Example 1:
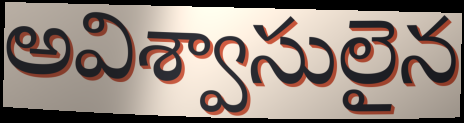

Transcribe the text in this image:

అవిశ్వాసులైన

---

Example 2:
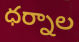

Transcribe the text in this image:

ధర్నాల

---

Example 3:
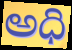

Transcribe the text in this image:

అధి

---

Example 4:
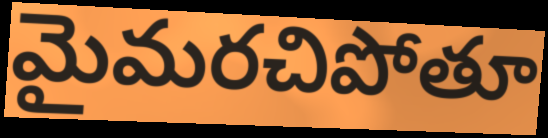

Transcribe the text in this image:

మైమరచిపోతూ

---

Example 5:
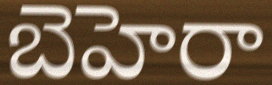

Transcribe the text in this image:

బెహెరా